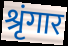
श्रृंगार